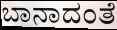
ಬಾನಾದಂತೆ